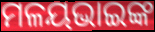
ମଳୟଭାଇଙ୍କ